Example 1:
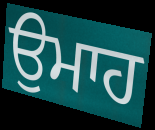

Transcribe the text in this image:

ਉਮਾਹ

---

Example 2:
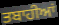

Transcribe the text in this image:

ਤਬਾਹੀਆਂ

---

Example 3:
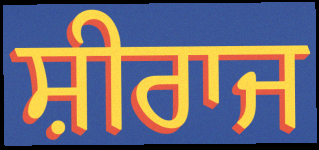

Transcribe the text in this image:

ਸ਼ੀਰਾਜ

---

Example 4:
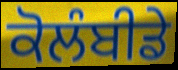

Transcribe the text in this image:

ਕੋਲੰਬੀਡੇ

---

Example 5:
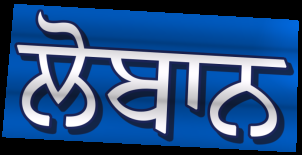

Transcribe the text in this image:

ਲੋਬਾਨ